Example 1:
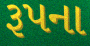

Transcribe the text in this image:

રૂપના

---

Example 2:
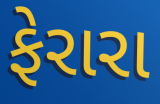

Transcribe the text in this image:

ફેરારા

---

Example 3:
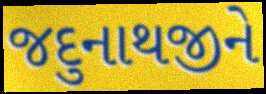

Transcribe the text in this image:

જદુનાથજીને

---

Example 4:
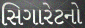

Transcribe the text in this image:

સિગારેટનો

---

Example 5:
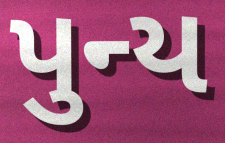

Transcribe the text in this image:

પુન્ય